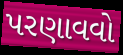
પરણાવવો